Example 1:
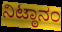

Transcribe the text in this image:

ನಿಟ್ಠಾನಂ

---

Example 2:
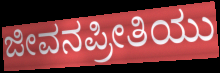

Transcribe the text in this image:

ಜೀವನಪ್ರೀತಿಯು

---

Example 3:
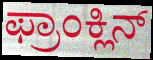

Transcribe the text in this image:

ಫ್ರಾಂಕ್ಲಿನ್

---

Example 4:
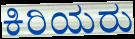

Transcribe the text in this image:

ಕಿರಿಯರು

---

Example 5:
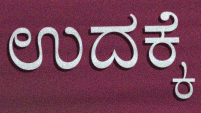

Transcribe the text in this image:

ಉದಕ್ಕೆ